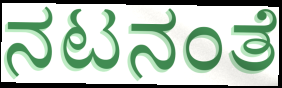
ನಟನಂತೆ